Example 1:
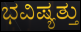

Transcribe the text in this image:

ಭವಿಷ್ಯತ್ತು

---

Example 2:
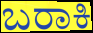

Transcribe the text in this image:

ಬರಾಕಿ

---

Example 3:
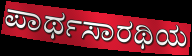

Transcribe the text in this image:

ಪಾರ್ಥಸಾರಥಿಯ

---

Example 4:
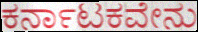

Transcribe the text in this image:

ಕರ್ನಾಟಕವೇನು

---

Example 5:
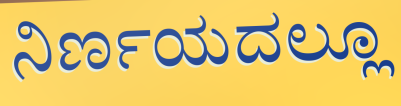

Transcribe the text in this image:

ನಿರ್ಣಯದಲ್ಲೂ